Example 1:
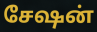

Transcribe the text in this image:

சேஷன்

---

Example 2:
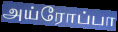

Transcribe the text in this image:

அய்ரோப்பா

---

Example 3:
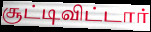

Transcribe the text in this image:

சூட்டிவிட்டார்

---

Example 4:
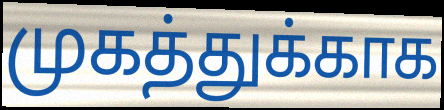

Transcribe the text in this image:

முகத்துக்காக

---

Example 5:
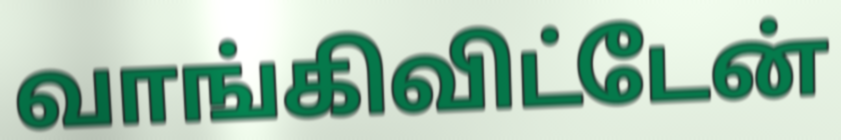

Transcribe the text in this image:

வாங்கிவிட்டேன்